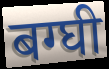
बग्घी